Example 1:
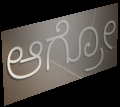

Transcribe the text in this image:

ಆಗ್ರೋ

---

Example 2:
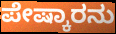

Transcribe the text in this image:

ಪೇಷ್ಕಾರನು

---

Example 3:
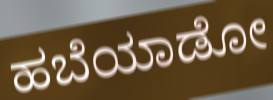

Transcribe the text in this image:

ಹಬೆಯಾಡೋ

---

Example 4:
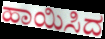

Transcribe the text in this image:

ಹಾಯಿಸಿದ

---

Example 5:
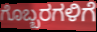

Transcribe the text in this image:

ಗೊಬ್ಬರಗಳಿಗೆ